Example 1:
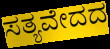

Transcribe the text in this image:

ಸತ್ಯವೇದದ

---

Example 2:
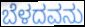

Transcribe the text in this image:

ಬೆಳದವನು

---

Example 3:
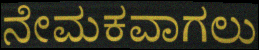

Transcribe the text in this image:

ನೇಮಕವಾಗಲು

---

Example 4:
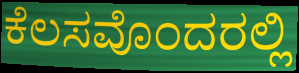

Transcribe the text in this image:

ಕೆಲಸವೊಂದರಲ್ಲಿ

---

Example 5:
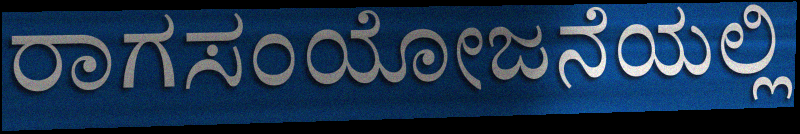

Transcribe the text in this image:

ರಾಗಸಂಯೋಜನೆಯಲ್ಲಿ